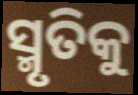
ସ୍ମୃତିକୁ